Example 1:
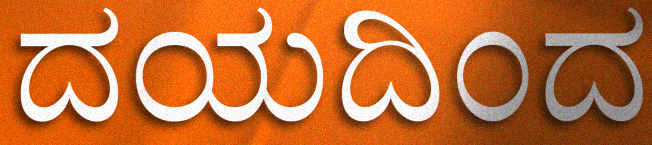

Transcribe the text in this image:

ದಯದಿಂದ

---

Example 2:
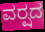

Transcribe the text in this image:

ವರ್‍ಷದ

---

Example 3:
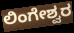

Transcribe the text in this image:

ಲಿಂಗೇಶ್ವರ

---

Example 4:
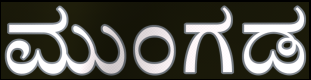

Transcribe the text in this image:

ಮುಂಗಡ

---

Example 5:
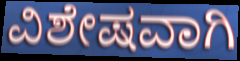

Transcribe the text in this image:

ವಿಶೇಷವಾಗಿ